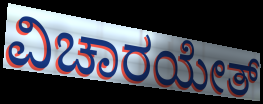
ವಿಚಾರಯೇತ್